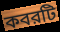
কবরটি